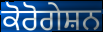
ਕੋਰੋਗੇਸ਼ਨ